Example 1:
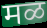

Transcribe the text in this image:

मळ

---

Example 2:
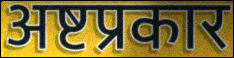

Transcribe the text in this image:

अष्टप्रकार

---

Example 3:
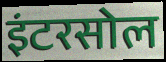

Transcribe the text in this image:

इंटरसोल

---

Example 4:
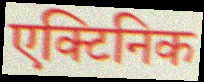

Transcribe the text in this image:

एक्टिनिक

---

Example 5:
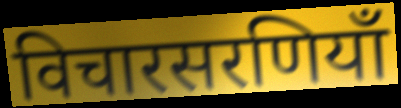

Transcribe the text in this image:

विचारसरणियाँ